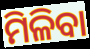
ମିଳିବା